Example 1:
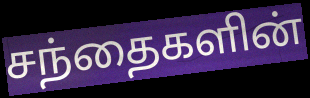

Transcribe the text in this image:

சந்தைகளின்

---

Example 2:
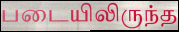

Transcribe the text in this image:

படையிலிருந்த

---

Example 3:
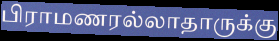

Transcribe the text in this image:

பிராமணரல்லாதாருக்கு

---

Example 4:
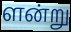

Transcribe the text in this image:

ளன்று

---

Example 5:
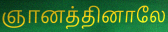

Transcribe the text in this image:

ஞானத்தினாலே